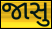
જાસુ